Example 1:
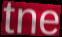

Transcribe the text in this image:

tne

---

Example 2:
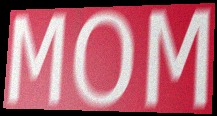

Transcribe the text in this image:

MOM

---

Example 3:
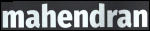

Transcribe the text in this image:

mahendran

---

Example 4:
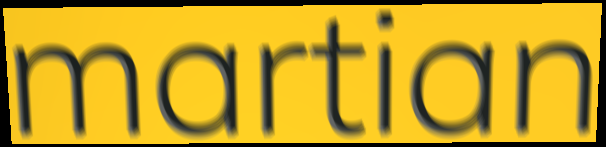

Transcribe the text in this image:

martian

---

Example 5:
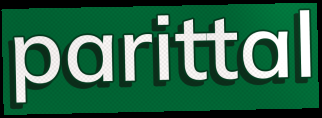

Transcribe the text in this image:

parittal